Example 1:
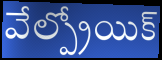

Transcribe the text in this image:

వేల్ప్రోయిక్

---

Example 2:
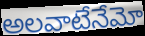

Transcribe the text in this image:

అలవాటేనేమో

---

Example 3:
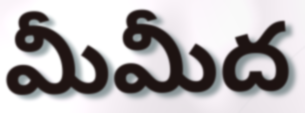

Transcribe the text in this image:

మీమీద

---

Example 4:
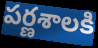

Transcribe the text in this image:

పర్ణశాలకి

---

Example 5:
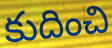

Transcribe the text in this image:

కుదించి